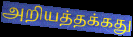
அறியத்தக்கது